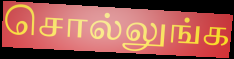
சொல்லுங்க